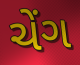
ચેંગ